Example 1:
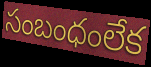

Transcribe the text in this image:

సంబంధంలేక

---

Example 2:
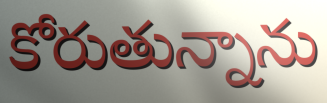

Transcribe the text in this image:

కోరుతున్నాను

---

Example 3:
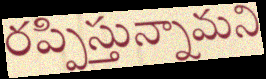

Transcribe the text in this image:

రప్పిస్తున్నామని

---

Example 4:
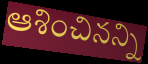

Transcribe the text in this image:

ఆశించినన్ని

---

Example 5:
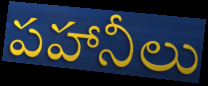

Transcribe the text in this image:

పహానీలు